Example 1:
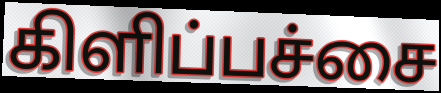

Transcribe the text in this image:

கிளிப்பச்சை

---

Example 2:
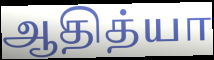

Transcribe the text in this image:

ஆதித்யா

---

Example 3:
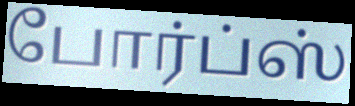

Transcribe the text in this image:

போர்ப்ஸ்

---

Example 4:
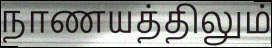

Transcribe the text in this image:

நாணயத்திலும்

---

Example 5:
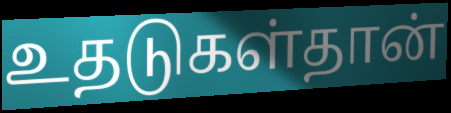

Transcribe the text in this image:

உதடுகள்தான்